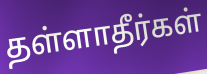
தள்ளாதீர்கள்